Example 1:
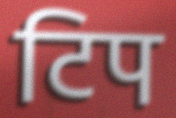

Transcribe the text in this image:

टिप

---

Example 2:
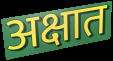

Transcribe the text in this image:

अक्षात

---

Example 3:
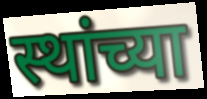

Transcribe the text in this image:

स्थांच्या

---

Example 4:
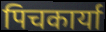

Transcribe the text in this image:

पिचकार्या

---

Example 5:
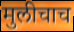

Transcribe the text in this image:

मुलीचाच